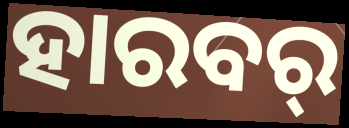
ହାରବର୍